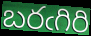
బరఁగిరి